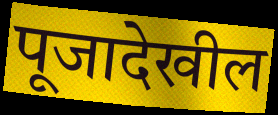
पूजादेखील